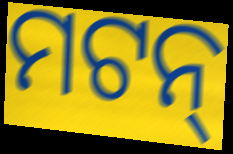
ମଟନ୍